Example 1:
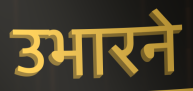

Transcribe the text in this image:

उभारने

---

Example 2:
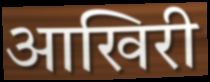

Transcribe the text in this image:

आखिरी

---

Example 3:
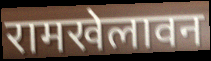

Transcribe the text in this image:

रामखेलावन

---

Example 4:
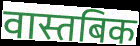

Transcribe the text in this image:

वास्तबिक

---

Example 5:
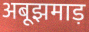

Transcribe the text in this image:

अबूझमाड़